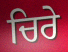
ਚਿਰੇ